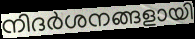
നിദർശനങ്ങളായി